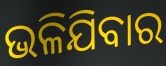
ଭଳିଯିବାର